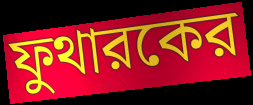
ফুথারকের